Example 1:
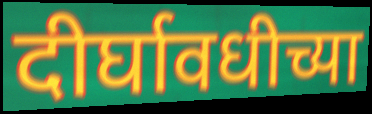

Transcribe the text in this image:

दीर्घावधीच्या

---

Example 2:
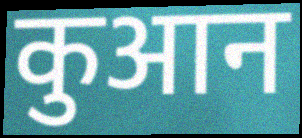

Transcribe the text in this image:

कुआन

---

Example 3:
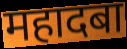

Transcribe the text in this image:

महादबा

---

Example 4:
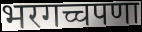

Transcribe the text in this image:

भरगच्चपणा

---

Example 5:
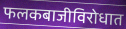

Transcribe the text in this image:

फलकबाजीविरोधात